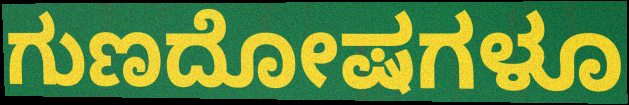
ಗುಣದೋಷಗಳೂ